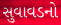
સુવાવડનો